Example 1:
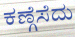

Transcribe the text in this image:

ಕಣ್ಗೆಸೆದು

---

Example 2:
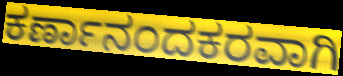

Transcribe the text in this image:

ಕರ್ಣಾನಂದಕರವಾಗಿ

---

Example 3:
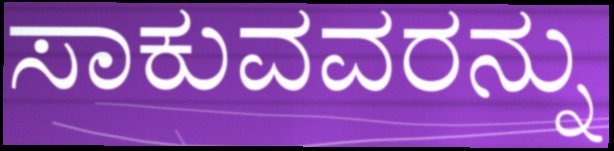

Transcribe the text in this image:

ಸಾಕುವವರನ್ನು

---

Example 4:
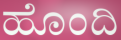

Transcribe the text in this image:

ಹೊಂದಿ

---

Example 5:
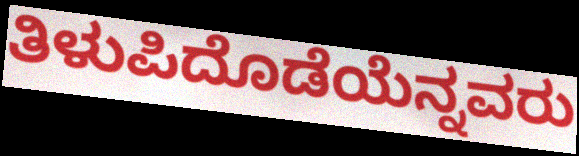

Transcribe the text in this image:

ತಿಳುಪಿದೊಡೆಯೆನ್ನವರು